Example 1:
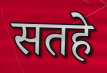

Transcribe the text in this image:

सतहे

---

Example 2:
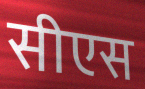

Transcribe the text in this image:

सीएस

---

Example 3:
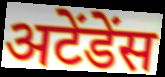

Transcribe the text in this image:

अटेंडेंस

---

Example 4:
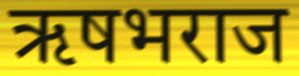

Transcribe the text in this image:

ऋषभराज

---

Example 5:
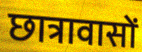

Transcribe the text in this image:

छात्रावासों